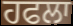
ਹਫਲਾ